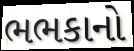
ભભકાનો